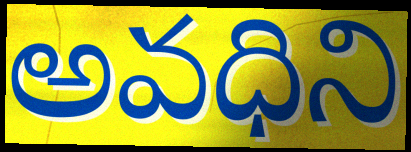
అవధిని